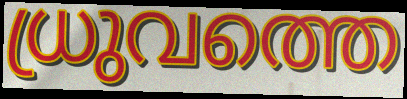
ധ്രുവത്തെ